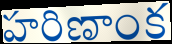
హరిణాంక